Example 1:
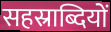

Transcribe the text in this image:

सहस्राब्दियों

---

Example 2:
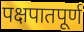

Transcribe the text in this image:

पक्षपातपूर्ण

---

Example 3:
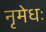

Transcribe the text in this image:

नृमेधः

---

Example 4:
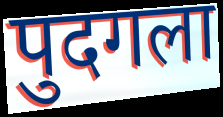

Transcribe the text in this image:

पुदगला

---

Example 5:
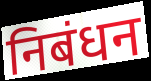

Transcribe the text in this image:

निबंधन